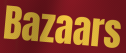
Bazaars